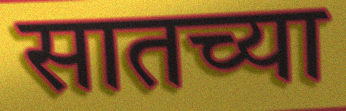
सातच्या